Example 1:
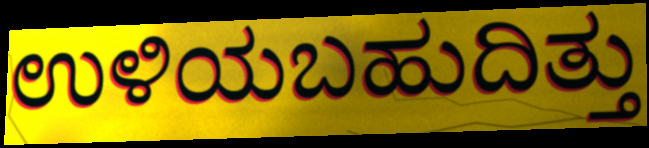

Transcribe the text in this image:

ಉಳಿಯಬಹುದಿತ್ತು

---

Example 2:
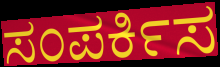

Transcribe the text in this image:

ಸಂಪರ್ಕಿಸ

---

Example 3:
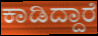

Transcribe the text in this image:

ಕಾಡಿದ್ದಾರೆ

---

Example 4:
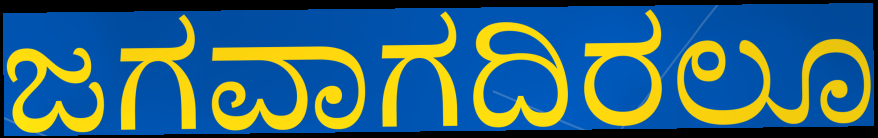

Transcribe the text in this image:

ಜಗವಾಗದಿರಲೂ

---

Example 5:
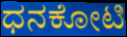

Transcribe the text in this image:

ಧನಕೋಟಿ